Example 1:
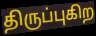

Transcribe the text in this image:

திருப்புகிற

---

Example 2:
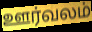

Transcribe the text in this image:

ஊர்வலம்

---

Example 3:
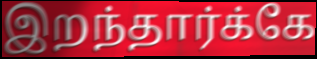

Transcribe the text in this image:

இறந்தார்க்கே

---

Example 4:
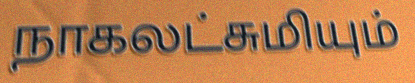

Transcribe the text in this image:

நாகலட்சுமியும்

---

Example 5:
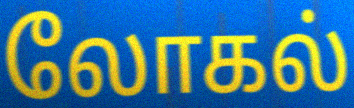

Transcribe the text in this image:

லோகல்